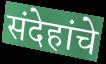
संदेहांचे